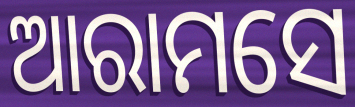
ଆରାମସେ